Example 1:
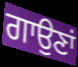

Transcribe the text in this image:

ਗਾਉਣਾਂ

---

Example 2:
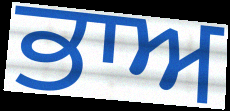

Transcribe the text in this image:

ਭਾਅ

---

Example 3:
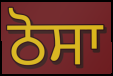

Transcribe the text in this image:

ਠੋਸਾ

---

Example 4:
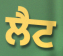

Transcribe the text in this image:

ਲੈਟ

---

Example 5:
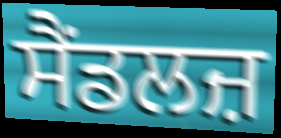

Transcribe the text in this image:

ਸੈਂਡਲਜ਼